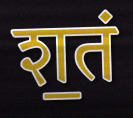
श॒तं